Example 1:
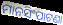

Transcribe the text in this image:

ମାନସିଂପାଟଣା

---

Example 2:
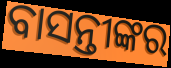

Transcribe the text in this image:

ବାସନ୍ତୀଙ୍କର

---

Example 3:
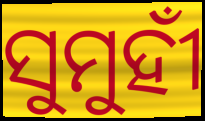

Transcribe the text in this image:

ସୁମୁହୀଁ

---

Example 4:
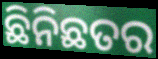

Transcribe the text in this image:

ଛିନିଛତର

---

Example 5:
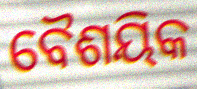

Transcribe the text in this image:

ବୈଶୟିକ